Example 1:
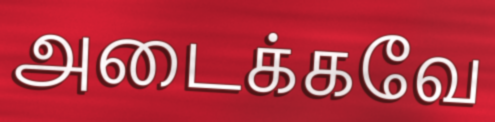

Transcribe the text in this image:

அடைக்கவே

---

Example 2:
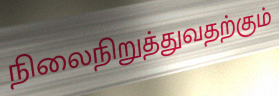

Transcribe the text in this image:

நிலைநிறுத்துவதற்கும்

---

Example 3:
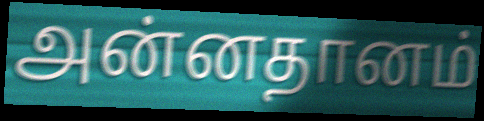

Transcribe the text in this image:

அன்னதானம்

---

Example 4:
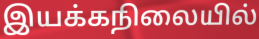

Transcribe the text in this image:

இயக்கநிலையில்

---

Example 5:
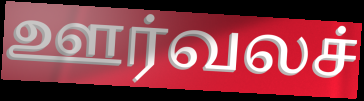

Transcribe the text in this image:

ஊர்வலச்